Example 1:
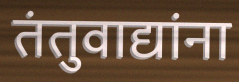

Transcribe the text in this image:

तंतुवाद्यांना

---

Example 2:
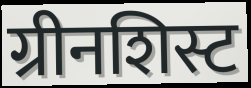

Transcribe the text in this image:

ग्रीनशिस्ट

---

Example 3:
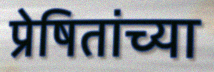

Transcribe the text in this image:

प्रेषितांच्या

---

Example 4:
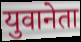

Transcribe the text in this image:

युवानेता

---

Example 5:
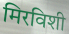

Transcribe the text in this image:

मिरविशी